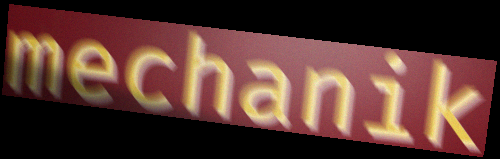
mechanik